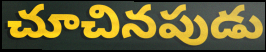
చూచినపుడు